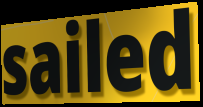
sailed